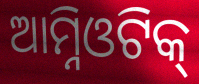
ଆମ୍ନିଓଟିକ୍